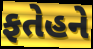
ફતેહને